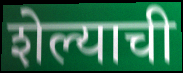
शेल्याची